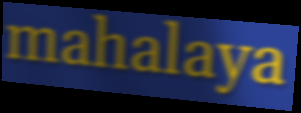
mahalaya